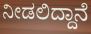
ನೀಡಲಿದ್ದಾನೆ